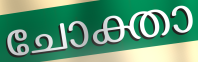
ചോക്താ